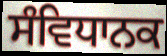
ਸੰਵਿਧਾਨਕ